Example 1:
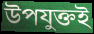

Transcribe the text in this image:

উপযুক্তই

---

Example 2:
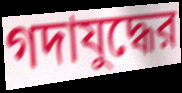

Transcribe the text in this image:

গদাযুদ্ধের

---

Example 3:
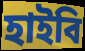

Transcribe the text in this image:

হাইবি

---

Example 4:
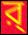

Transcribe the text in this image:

র্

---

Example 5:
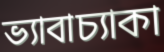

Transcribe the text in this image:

ভ্যাবাচ্যাকা